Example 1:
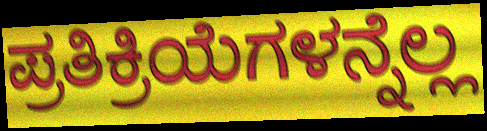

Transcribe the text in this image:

ಪ್ರತಿಕ್ರಿಯೆಗಳನ್ನೆಲ್ಲ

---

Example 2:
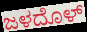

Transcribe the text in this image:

ಜಳದೊಳ್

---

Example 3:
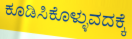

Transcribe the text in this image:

ಕೂಡಿಸಿಕೊಳ್ಳುವದಕ್ಕೆ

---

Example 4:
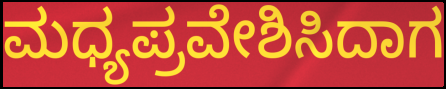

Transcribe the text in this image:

ಮಧ್ಯಪ್ರವೇಶಿಸಿದಾಗ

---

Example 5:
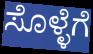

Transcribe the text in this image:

ಸೊಳ್ಳೆಗೆ